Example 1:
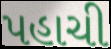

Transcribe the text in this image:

પહાચી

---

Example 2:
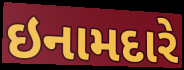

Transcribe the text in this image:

ઇનામદારે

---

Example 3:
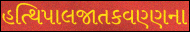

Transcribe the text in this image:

હત્થિપાલજાતકવણ્ણના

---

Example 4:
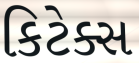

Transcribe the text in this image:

કિટેક્સ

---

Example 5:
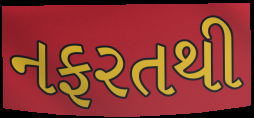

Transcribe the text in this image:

નફરતથી